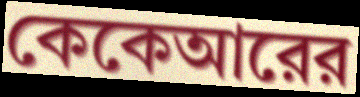
কেকেআরের